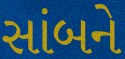
સાંબને